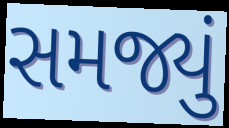
સમજ્યું